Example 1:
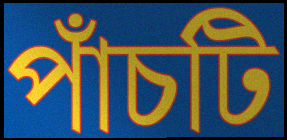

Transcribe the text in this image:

পাঁচটি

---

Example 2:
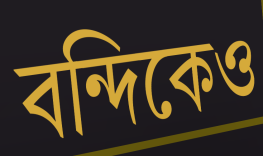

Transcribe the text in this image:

বন্দিকেও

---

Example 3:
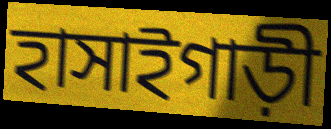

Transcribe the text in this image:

হাসাইগাড়ী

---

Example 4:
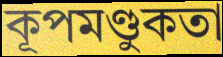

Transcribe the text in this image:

কূপমণ্ডুকতা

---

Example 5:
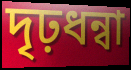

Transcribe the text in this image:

দৃঢ়ধন্বা